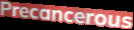
Precancerous